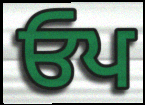
ਓਪ